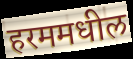
हरममधील